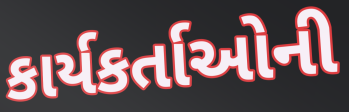
કાર્યકર્તાઓની